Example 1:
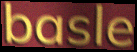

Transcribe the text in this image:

basle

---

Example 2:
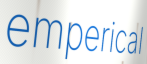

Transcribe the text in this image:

emperical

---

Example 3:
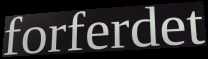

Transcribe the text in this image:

forferdet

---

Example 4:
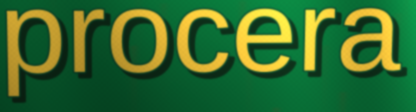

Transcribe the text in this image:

procera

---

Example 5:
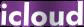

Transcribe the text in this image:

icloud